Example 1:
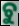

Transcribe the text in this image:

ଚୁ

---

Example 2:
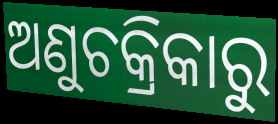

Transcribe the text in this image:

ଅଣୁଚକ୍ରିକାରୁ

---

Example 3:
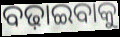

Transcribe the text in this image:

ବଢ଼ାଇବାକୁ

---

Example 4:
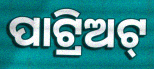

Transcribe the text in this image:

ପାଟ୍ରିଅଟ୍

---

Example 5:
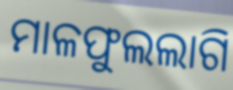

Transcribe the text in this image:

ମାଳଫୁଲଲାଗି